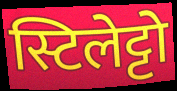
स्टिलेट्टो